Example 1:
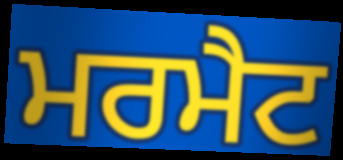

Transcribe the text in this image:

ਮਰਮੈਟ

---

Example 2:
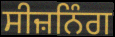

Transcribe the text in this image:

ਸੀਜ਼ਨਿੰਗ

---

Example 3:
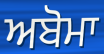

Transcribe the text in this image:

ਅਬੋਮਾ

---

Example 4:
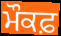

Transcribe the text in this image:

ਮੌਕਫ਼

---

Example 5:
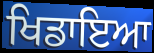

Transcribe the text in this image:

ਖਿਡਾਇਆ